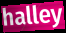
halley